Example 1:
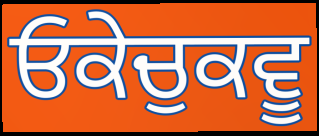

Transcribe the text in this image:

ਓਕੇਚੁਕਵੂ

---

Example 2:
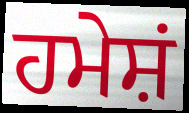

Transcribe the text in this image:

ਹਮੇਸ਼ਂ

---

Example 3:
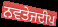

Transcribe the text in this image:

ਨਵਤੇਜਦੀਪ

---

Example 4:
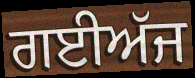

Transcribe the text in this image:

ਗਈਅੱਜ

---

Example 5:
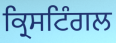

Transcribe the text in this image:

ਕ੍ਰਿਸਟਿੰਗਲ